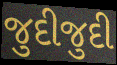
જુદીજુદી